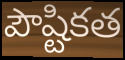
పౌష్టికత